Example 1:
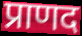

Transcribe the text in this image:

प्राणद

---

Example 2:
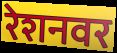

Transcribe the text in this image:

रेशनवर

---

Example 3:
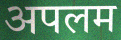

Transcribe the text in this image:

अपलम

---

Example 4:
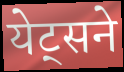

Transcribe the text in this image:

येट्सने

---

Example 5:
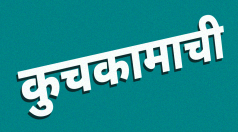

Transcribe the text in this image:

कुचकामाची